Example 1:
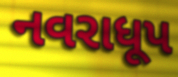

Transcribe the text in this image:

નવરાધૂપ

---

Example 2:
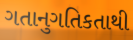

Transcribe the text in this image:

ગતાનુગતિકતાથી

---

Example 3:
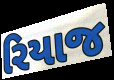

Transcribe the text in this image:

રિયાજ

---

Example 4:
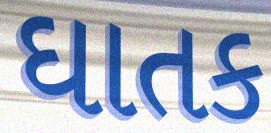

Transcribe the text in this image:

ઘાતક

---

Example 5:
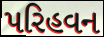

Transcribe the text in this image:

પરિહવન